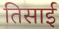
तिसाई